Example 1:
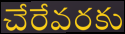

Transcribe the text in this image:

చేరేవరకు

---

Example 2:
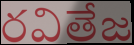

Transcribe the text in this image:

రవితేజ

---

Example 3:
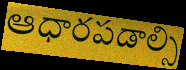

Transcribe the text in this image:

ఆధారపడాల్సి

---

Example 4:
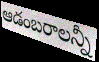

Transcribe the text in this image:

ఆడంబరాలన్నీ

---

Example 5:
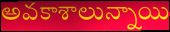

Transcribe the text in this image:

అవకాశాలున్నాయి